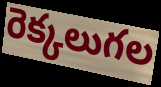
రెక్కలుగల